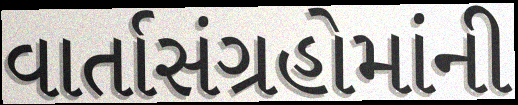
વાર્તાસંગ્રહોમાંની